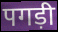
पगड़ी